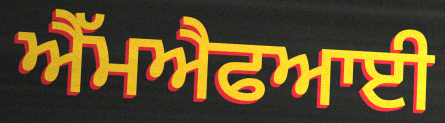
ਐੱਮਐਫਆਈ